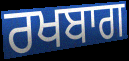
ਰਖਬਾਗ